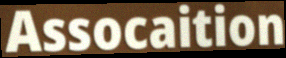
Assocaition